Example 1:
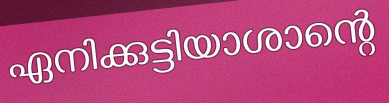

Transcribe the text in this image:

ഏനിക്കുട്ടിയാശാന്റെ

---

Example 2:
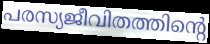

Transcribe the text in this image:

പരസ്യജീവിതത്തിന്റെ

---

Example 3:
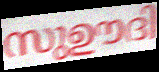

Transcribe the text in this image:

സുഊദി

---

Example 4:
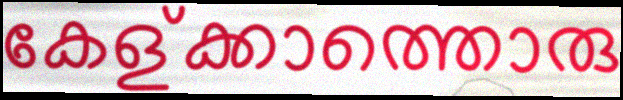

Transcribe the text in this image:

കേള്ക്കാത്തൊരു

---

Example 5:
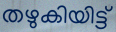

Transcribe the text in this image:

തഴുകിയിട്ട്